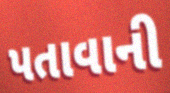
પતાવાની